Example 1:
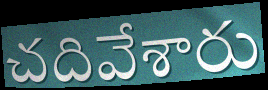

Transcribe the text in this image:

చదివేశారు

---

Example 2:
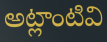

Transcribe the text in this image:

అట్లాంటివి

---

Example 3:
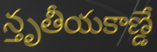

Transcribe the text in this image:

న్తృతీయకాణ్డే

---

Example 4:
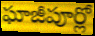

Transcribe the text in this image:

ఘాజీపూర్లో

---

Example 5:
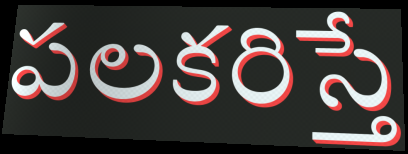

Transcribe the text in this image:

పలకరిస్తే